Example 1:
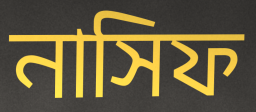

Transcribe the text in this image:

নাসিফ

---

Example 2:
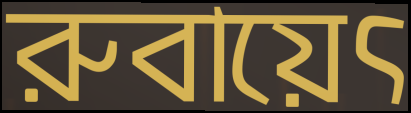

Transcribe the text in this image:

রুবায়েৎ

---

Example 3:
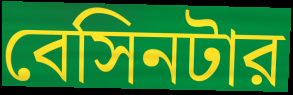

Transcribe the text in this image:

বেসিনটার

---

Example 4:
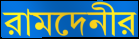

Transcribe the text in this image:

রামদেনীর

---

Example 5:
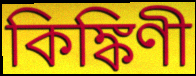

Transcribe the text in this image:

কিঙ্কিণী